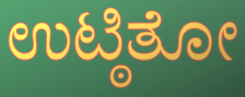
ಉಟ್ಠಿತೋ